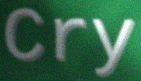
Cry